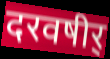
दरवषीर्